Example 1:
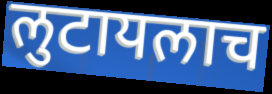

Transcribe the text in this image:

लुटायलाच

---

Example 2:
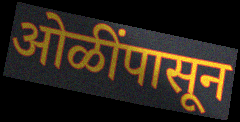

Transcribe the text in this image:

ओळींपासून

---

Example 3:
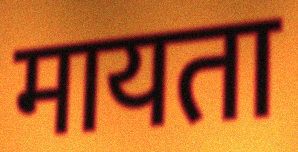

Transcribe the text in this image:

मायता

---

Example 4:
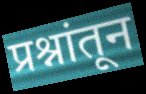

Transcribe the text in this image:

प्रश्नांतून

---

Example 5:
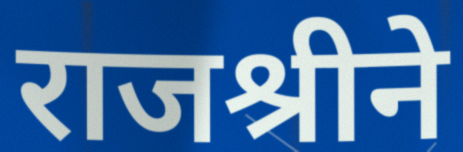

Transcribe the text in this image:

राजश्रीने